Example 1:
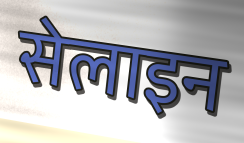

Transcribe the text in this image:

सेलाइन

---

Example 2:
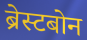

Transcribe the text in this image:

ब्रेस्टबोन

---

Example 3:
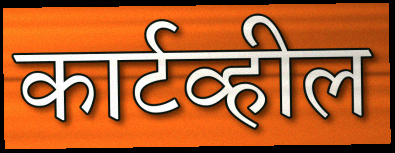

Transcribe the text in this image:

कार्टव्हील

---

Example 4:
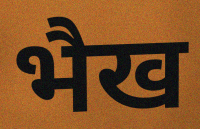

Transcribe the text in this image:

भैख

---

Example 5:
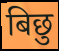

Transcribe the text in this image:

बिछु